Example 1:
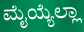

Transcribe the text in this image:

ಮೈಯ್ಯೆಲ್ಲಾ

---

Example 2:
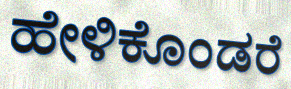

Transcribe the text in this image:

ಹೇಳಿಕೊಂಡರೆ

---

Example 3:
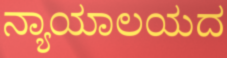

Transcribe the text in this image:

ನ್ಯಾಯಾಲಯದ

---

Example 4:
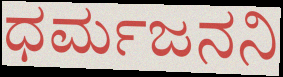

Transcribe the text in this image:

ಧರ್ಮಜನನಿ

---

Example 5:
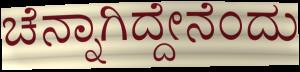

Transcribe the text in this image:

ಚೆನ್ನಾಗಿದ್ದೇನೆಂದು